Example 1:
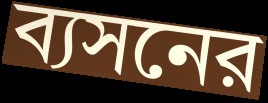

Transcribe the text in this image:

ব্যসনের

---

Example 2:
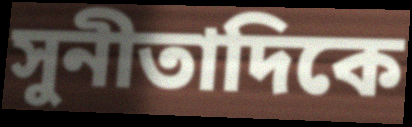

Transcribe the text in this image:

সুনীতাদিকে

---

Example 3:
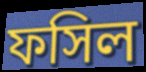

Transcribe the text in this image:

ফসিল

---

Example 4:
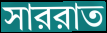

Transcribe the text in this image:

সাররাত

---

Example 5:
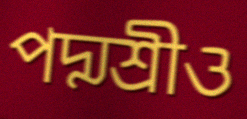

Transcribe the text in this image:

পদ্মশ্রীও